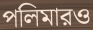
পলিমারও